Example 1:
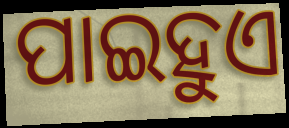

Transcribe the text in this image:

ପାଇହୁଏ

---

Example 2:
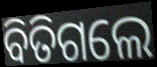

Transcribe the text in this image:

ବିତିଗଲେ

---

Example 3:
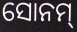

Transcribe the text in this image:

ସୋନମ୍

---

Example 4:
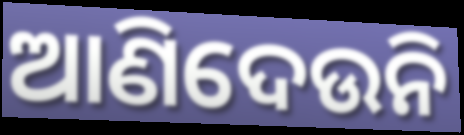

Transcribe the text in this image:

ଆଣିଦେଉନି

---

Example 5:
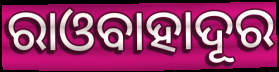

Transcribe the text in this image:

ରାଓବାହାଦୂର